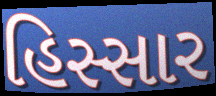
હિસ્સાર